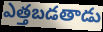
ఎత్తబడతాడు